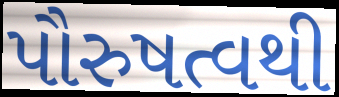
પૌરુષત્વથી